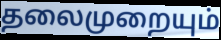
தலைமுறையும்